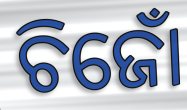
ଚିଜୋଁ